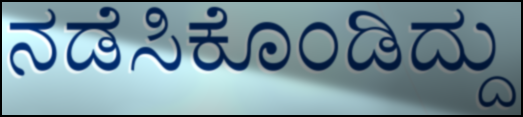
ನಡೆಸಿಕೊಂಡಿದ್ದು